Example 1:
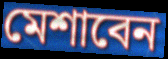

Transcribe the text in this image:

মেশাবেন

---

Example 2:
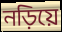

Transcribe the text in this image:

নড়িয়ে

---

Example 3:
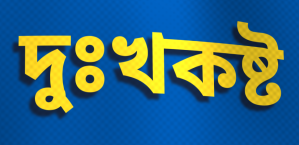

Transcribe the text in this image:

দুঃখকষ্ট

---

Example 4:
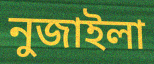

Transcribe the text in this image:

নুজাইলা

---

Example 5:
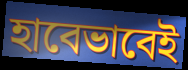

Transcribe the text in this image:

হাবেভাবেই